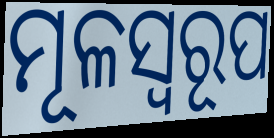
ମୂଳସ୍ୱରୂପ